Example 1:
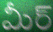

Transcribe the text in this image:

మీర్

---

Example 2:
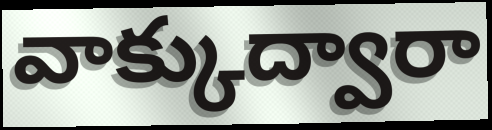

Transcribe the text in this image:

వాక్కుద్వారా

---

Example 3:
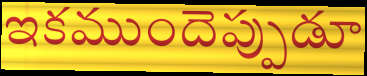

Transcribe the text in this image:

ఇకముందెప్పుడూ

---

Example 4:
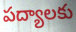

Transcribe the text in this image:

పద్యాలకు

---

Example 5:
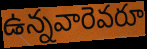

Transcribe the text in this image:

ఉన్నవారెవరూ